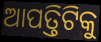
ଆପତ୍ତିଟିକୁ